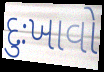
દુઃખાવો